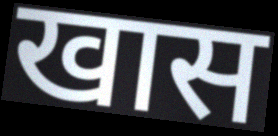
खास